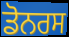
ਡੋਨਰਸ